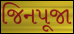
જિનપૂજા